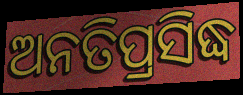
ଅନତିପ୍ରସିଦ୍ଧ